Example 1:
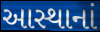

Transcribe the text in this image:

આસ્થાનાં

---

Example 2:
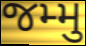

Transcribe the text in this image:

જમ્મુ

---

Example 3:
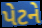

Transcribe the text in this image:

પેટને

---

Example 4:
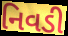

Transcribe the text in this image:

નિવડી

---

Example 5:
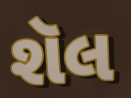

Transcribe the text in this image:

શૅલ